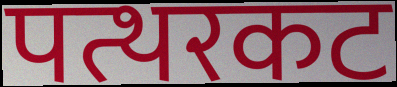
पत्थरकट